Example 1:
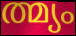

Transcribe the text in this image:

ത്മ്യം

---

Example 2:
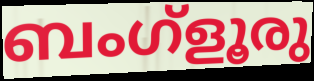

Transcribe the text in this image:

ബംഗ്ളൂരു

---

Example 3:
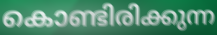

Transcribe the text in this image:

കൊണ്ടിരിക്കുന്ന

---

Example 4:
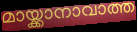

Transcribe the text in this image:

മായ്ക്കാനാവാത്ത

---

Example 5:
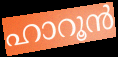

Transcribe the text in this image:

ഹാറൂൻ